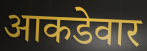
आकडेवार